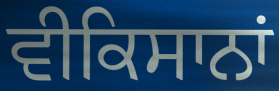
ਵੀਕਿਸਾਨਾਂ